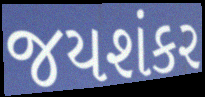
જયશંકર